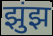
झुंझ